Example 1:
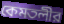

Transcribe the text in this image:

কেমতলীর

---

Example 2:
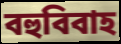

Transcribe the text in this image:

বহুবিবাহ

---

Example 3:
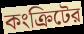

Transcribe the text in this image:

কংক্রিটের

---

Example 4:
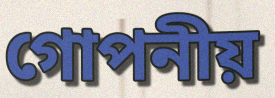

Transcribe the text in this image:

গোপনীয়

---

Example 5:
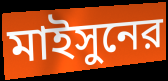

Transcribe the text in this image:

মাইসুনের